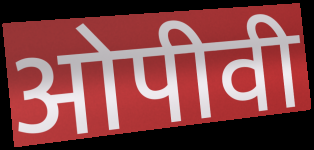
ओपीवी